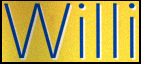
Willi